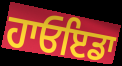
ਹਾਓਇਡਾ